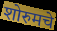
शोरुमचे